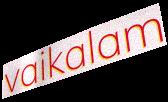
vaikalam